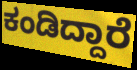
ಕಂಡಿದ್ದಾರೆ